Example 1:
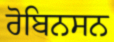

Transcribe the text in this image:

ਰੋਬਿਨਸਨ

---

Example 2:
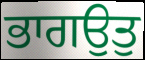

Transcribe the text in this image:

ਭਾਗਉਤੁ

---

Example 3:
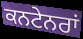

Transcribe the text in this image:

ਕਨਟੇਨਰਾਂ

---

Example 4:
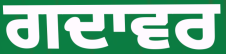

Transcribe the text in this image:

ਗਦਾਵਰ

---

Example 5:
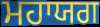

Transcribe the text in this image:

ਮਹਾਯਗ